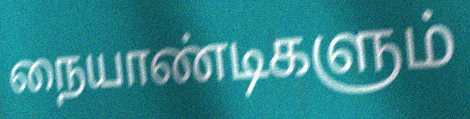
நையாண்டிகளும்